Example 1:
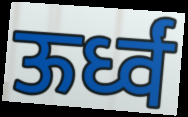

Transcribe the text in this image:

ऊर्ध्व॑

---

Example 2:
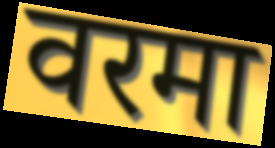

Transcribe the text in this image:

वरमा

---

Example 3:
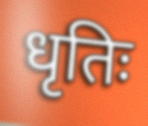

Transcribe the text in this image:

धृतिः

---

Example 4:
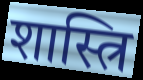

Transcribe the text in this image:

शास्त्रि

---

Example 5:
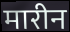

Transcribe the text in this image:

मारीन